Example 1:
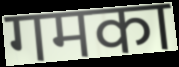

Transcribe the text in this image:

गमका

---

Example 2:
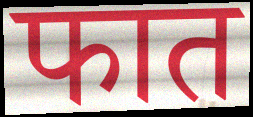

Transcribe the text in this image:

फात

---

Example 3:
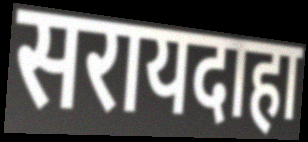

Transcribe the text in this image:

सरायदाहा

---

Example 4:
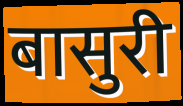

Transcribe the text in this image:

बासुरी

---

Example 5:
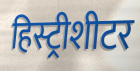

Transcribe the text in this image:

हिस्‍ट्रीशीटर